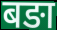
बङा